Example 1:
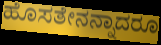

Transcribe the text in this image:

ಹೊಸತೇನನ್ನಾದರೂ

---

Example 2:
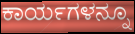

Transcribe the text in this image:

ಕಾರ್ಯಗಳನ್ನೂ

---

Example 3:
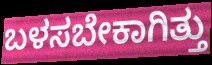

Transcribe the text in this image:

ಬಳಸಬೇಕಾಗಿತ್ತು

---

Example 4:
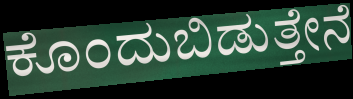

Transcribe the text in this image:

ಕೊಂದುಬಿಡುತ್ತೇನೆ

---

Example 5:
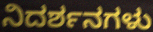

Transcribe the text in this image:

ನಿದರ್ಶನಗಳು